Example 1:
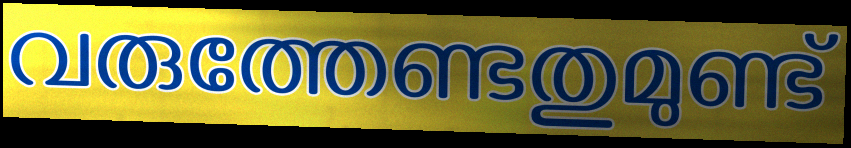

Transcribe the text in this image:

വരുത്തേണ്ടതുമുണ്ട്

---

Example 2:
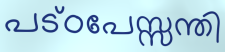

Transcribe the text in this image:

പട്ഠപേസ്സന്തി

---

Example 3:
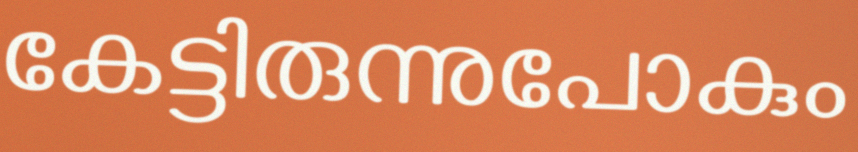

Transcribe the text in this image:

കേട്ടിരുന്നുപോകും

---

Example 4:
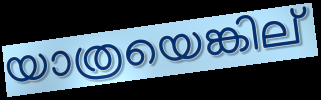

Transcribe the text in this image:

യാത്രയെങ്കില്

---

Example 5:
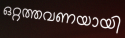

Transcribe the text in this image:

ഒറ്റത്തവണയായി